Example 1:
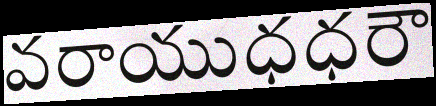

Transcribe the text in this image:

వరాయుధధరౌ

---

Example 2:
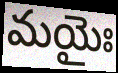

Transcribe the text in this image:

మయైః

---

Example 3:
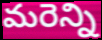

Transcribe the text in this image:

మరెన్ని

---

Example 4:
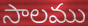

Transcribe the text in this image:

సాలము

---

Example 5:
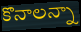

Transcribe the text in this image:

కొనాలన్నా